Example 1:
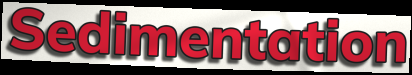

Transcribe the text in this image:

Sedimentation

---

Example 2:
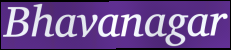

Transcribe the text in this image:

Bhavanagar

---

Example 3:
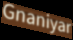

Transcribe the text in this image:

Gnaniyar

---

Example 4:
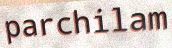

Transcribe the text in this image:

parchilam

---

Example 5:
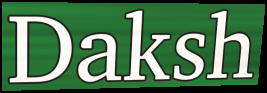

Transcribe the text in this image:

Daksh